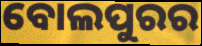
ବୋଲପୁରର